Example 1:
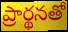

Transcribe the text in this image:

ప్రార్థనతో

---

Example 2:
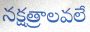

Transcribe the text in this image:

నక్షత్రాలవలే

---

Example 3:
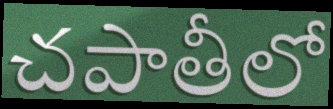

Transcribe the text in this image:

చపాతీలో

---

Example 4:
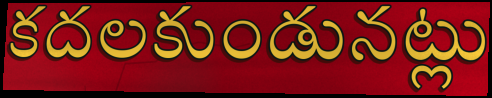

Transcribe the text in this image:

కదలకుండునట్లు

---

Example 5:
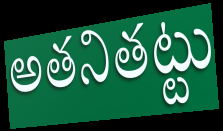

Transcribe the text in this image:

అతనితట్టు